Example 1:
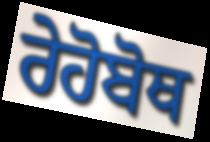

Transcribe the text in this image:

ਰੇਹੋਬੋਥ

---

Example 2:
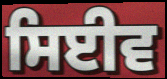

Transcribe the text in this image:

ਸਿਈਵ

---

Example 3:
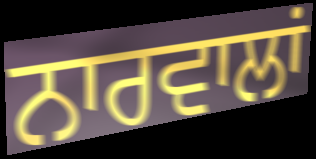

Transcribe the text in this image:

ਨਾਰਵਾਲਾਂ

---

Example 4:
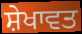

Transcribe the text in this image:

ਸ਼ੇਖਾਵਤ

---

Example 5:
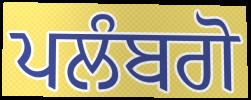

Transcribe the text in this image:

ਪਲੰਬਗੋ